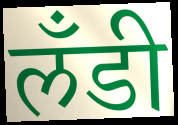
लँडी